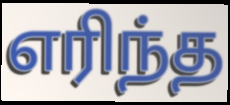
எரிந்த